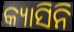
କ୍ୟାସିନି